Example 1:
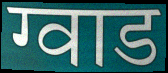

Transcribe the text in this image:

ग्वाड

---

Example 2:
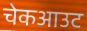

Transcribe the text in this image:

चेकआउट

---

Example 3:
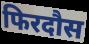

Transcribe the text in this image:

फिरदौस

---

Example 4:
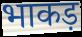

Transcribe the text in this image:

भाकड़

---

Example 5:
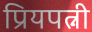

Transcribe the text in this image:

प्रियपत्नी